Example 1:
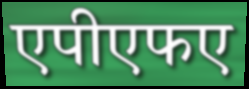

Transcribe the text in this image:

एपीएफए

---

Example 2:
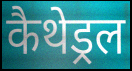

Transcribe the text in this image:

कैथेड्रल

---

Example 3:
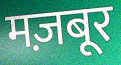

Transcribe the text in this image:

मज़बूर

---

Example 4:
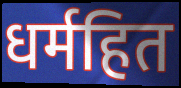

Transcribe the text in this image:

धर्महित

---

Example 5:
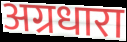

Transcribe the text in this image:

अग्रधारा